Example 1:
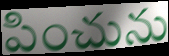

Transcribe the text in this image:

పించును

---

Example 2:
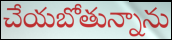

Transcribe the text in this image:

చేయబోతున్నాను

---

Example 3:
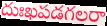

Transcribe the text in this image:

దుఃఖపడగలరా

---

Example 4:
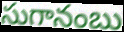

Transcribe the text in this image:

సుగానంబు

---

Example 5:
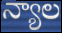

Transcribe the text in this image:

న్యాల